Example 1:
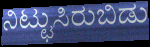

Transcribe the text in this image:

ನಿಟ್ಟುಸಿರುಬಿಡು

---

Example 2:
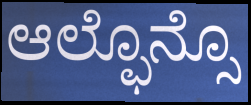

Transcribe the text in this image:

ಆಲ್ಫೊನ್ಸೊ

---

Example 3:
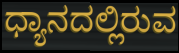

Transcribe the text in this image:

ಧ್ಯಾನದಲ್ಲಿರುವ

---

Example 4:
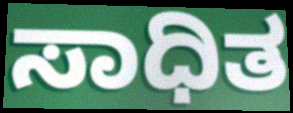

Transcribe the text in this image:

ಸಾಧಿತ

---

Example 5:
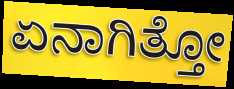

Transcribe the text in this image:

ಏನಾಗಿತ್ತೋ